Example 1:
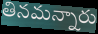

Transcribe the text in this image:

తినమన్నారు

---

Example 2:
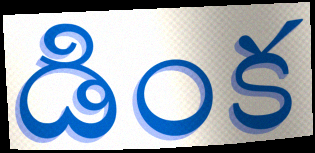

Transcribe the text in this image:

డింక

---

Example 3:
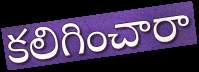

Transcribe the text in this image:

కలిగించారా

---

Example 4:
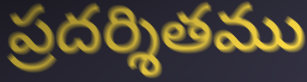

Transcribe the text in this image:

ప్రదర్శితము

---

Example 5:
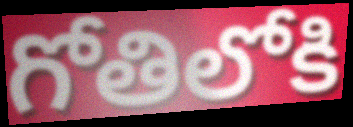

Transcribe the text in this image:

గోతిలోకి